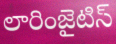
లారింజైటిస్